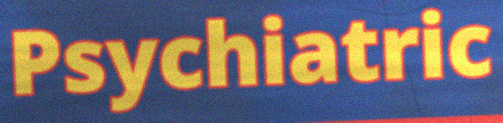
Psychiatric